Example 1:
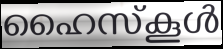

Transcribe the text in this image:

ഹൈസ്‌കൂൾ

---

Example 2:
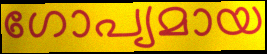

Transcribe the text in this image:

ഗോപ്യമായ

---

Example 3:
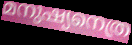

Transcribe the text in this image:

മനുഷ്യനെത്ര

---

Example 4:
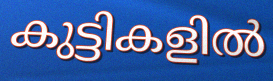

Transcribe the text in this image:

കുട്ടികളിൽ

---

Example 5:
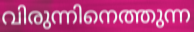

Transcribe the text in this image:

വിരുന്നിനെത്തുന്ന